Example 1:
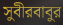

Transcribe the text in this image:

সুবীরবাবুর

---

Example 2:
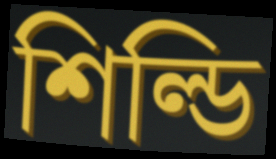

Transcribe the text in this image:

শিল্ডি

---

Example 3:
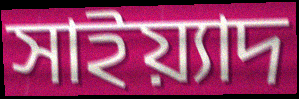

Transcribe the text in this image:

সাইয়্যাদ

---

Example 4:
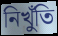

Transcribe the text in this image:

নিখুঁতি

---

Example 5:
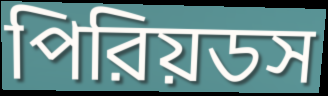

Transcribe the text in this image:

পিরিয়ডস